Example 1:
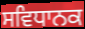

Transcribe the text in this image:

ਸਵਿਧਾਨਕ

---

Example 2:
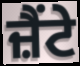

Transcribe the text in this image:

ਜ਼ੈਂਟੇ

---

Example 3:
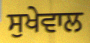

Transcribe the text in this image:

ਸੁਖੇਵਾਲ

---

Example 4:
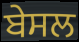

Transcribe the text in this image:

ਬੇਸਲ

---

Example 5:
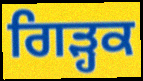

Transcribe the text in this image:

ਗਿੜ੍ਹਕ